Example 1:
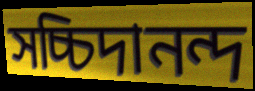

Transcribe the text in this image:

সচ্চিদানন্দ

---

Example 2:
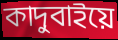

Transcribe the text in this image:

কাদুবাইয়ে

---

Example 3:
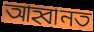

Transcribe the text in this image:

আহ্বানত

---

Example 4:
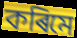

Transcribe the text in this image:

কৰিমে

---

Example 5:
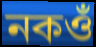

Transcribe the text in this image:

নকওঁ